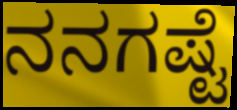
ನನಗಷ್ಟೆ